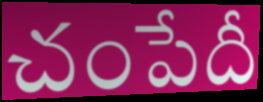
చంపేదీ